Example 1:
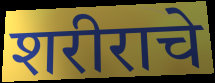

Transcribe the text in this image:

शरीराचे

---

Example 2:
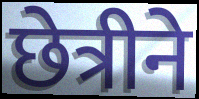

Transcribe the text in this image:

छेत्रीने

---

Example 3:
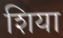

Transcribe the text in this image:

शिया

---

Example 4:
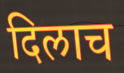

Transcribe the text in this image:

दिलाच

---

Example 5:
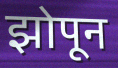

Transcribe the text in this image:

झोपून